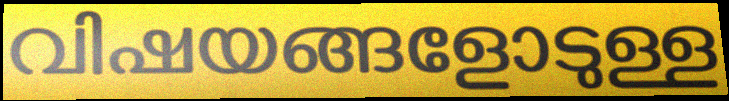
വിഷയങ്ങളോടുള്ള